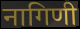
नागिणी